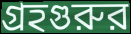
গ্রহগুরুর